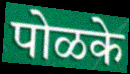
पोळके